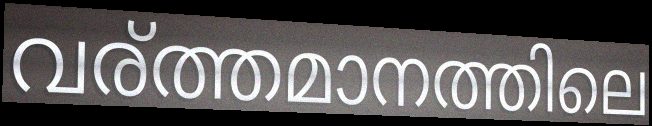
വര്ത്തമാനത്തിലെ